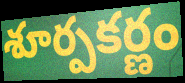
శూర్పకర్ణం